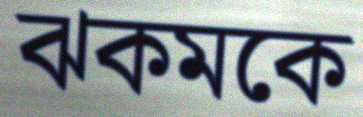
ঝকমকে